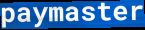
paymaster